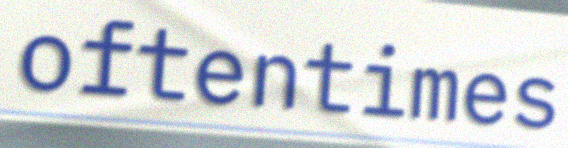
oftentimes